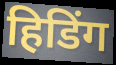
हिडिंग